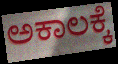
ಅಕಾಲಕ್ಕೆ